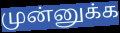
முன்னுக்க